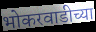
भोकरवाडीच्या